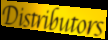
Distributors